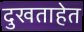
दुखताहेत